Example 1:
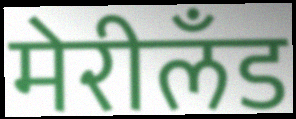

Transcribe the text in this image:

मेरीलँड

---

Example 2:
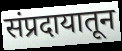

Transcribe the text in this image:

संप्रदायातून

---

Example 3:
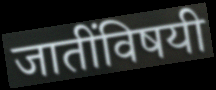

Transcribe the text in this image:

जातींविषयी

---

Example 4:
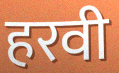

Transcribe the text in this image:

हरवी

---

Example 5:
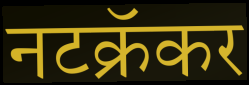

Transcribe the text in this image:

नटक्रॅकर